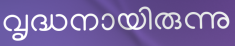
വൃദ്ധനായിരുന്നു